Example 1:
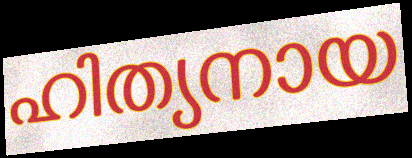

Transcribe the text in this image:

ഹിത്യനായ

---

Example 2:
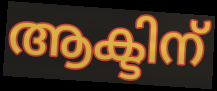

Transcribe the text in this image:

ആക്ടിന്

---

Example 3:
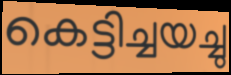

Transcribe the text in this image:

കെട്ടിച്ചയച്ചു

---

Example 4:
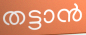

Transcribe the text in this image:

തട്ടാൻ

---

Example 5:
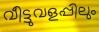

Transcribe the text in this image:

വീട്ടുവളപ്പിലും